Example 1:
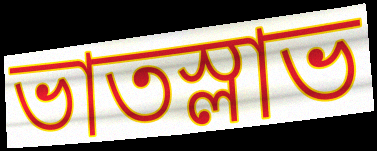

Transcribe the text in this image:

ভাতস্লাভ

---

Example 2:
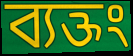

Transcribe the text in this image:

ব্যক্তং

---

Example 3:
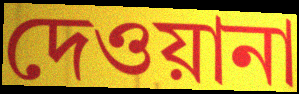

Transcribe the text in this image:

দেওয়ানা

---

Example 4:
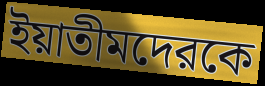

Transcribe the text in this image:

ইয়াতীমদেরকে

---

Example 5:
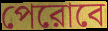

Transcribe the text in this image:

পেরোবে